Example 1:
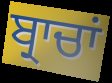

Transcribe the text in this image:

ਬ੍ਰਾਚਾਂ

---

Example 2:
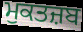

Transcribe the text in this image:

ਮੁਕਤਜ਼ਬ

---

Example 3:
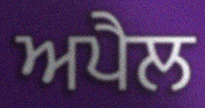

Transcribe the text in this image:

ਅਪੈਲ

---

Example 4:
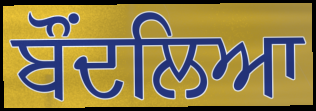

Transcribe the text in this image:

ਬੌਂਦਲਿਆ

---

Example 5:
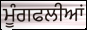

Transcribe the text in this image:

ਮੂੰਗਫਲੀਆਂ